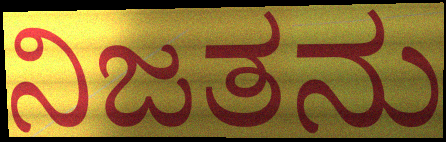
ನಿಜತನು